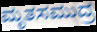
ಮೃತಸಮುದ್ರ